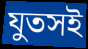
যুতসই